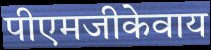
पीएमजीकेवाय